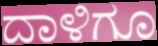
ದಾಳಿಗೂ